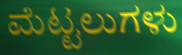
ಮೆಟ್ಟಲುಗಳು